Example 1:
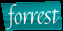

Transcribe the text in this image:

forrest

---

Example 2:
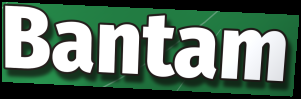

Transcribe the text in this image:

Bantam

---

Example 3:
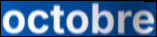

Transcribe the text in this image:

octobre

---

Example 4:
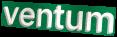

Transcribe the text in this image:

ventum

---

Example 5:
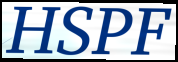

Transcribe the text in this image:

HSPF